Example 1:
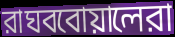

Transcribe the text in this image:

রাঘববোয়ালেরা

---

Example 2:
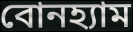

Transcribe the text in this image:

বোনহ্যাম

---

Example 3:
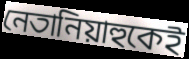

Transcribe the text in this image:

নেতানিয়াহুকেই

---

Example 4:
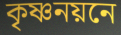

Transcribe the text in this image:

কৃষ্ণনয়নে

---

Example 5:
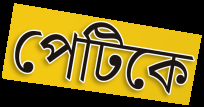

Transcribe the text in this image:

পেটিকে